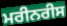
ਮਰੀਨਰੀਸ